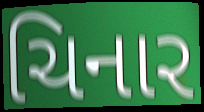
ચિનાર